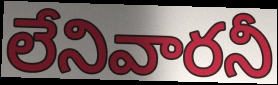
లేనివారనీ